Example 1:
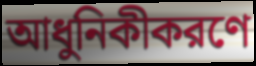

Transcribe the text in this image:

আধুনিকীকরণে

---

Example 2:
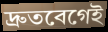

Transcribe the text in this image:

দ্রুতবেগেই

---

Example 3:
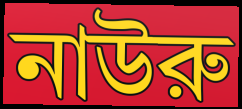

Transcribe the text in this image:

নাউরু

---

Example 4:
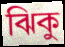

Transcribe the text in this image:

ঝিকু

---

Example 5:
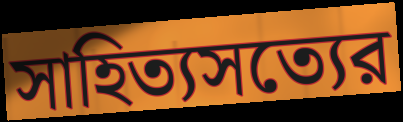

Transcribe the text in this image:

সাহিত্যসত্যের